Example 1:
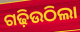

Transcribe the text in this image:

ଗଢ଼ିଉଠିଲା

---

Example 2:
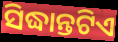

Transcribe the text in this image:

ସିଦ୍ଧାନ୍ତଟିଏ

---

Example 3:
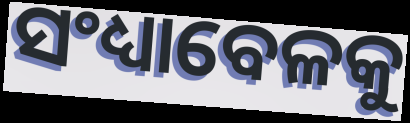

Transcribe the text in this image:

ସଂଧ୍ୟାବେଳକୁ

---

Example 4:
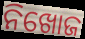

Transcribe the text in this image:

ନିଖୋଜ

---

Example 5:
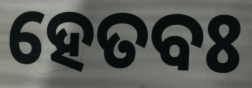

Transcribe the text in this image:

ହେତବଃ